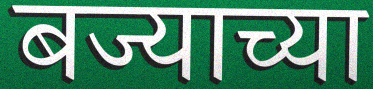
बज्याच्या